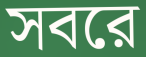
সবরে